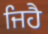
ਜਿਹੈ